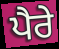
ਪੈਰੇ